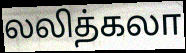
லலித்கலா